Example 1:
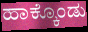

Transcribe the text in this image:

ಹಾಕ್ಕೊಂಡು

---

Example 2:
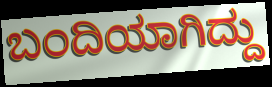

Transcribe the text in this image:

ಬಂದಿಯಾಗಿದ್ದು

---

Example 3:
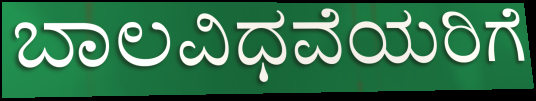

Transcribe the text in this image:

ಬಾಲವಿಧವೆಯರಿಗೆ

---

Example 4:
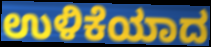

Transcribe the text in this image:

ಉಳಿಕೆಯಾದ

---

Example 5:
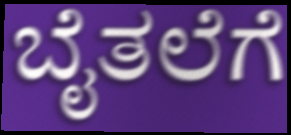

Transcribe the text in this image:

ಬೈತಲೆಗೆ